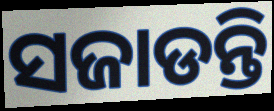
ସଜାଡନ୍ତି